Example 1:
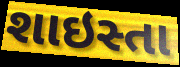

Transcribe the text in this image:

શાઇસ્તા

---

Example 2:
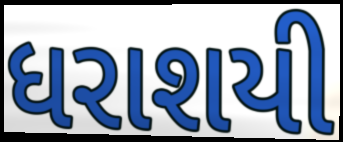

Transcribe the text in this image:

ધરાશયી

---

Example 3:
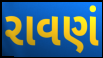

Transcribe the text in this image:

રાવણં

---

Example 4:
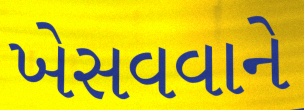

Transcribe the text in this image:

ખેસવવાને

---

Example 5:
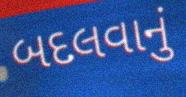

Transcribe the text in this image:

બદલવાનું